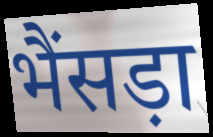
भैंसड़ा